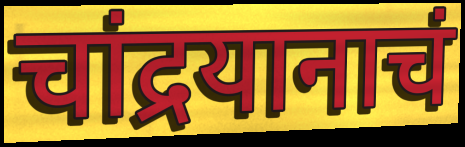
चांद्रयानाचं